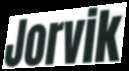
Jorvik